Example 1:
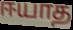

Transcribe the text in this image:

ஈயாத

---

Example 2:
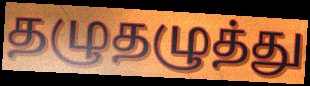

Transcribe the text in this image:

தழுதழுத்து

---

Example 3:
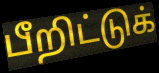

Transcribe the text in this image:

பீறிட்டுக்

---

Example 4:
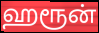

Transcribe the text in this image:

ஹரூன்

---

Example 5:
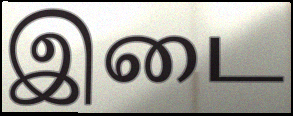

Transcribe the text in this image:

இடை